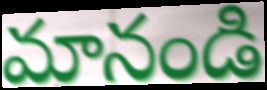
మానండి